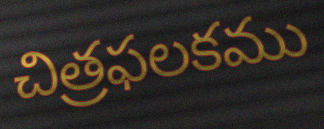
చిత్రఫలకము